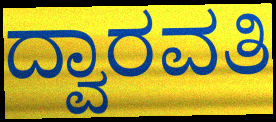
ದ್ವಾರವತಿ